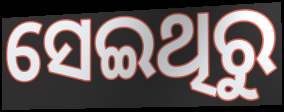
ସେଇଥିରୁ